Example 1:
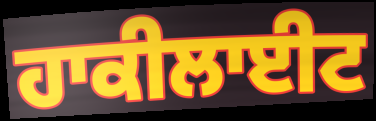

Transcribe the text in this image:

ਹਾਕੀਲਾਈਟ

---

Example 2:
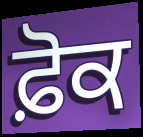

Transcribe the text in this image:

ਫ਼ੋਕ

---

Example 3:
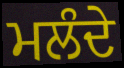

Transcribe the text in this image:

ਮਲੰਦੇ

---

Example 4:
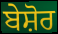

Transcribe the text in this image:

ਬੇਸ਼ੋਰ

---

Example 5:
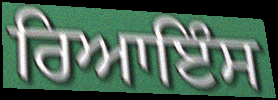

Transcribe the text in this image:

ਰਿਆਇੰਸ